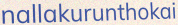
nallakurunthokai